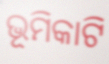
ଭୂମିକାଟି